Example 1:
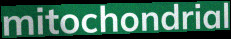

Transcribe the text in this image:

mitochondrial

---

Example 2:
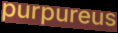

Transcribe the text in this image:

purpureus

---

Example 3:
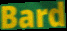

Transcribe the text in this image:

Bard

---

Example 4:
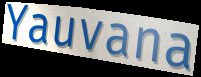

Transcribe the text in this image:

Yauvana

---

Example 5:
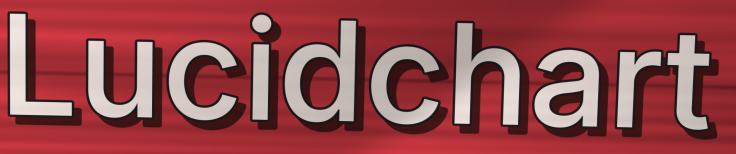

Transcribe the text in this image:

Lucidchart